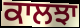
ਕਾਲਝਾ